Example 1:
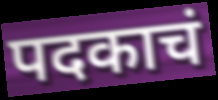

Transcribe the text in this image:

पदकाचं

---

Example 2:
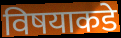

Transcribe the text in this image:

विषयाकडे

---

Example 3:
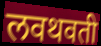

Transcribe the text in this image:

लवथवती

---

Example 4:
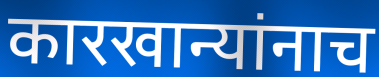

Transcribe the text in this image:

कारखान्यांनाच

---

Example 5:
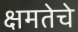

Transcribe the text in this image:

क्षमतेचे